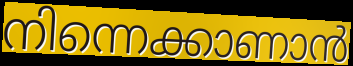
നിന്നെക്കാണാൻ